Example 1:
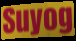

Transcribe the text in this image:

Suyog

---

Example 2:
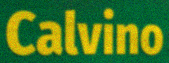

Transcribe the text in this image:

Calvino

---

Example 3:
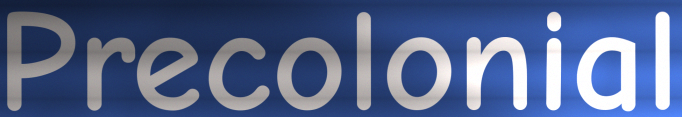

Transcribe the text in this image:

Precolonial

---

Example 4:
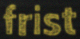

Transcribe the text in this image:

frist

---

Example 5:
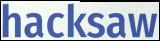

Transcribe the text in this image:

hacksaw